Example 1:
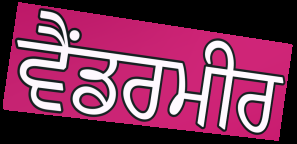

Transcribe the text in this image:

ਵੈਂਡਰਮੀਰ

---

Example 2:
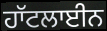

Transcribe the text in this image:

ਹਾੱਟਲਾਈਨ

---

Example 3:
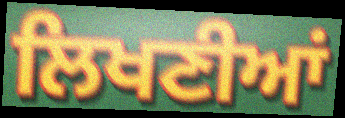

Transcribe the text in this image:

ਲਿਖਣੀਆਂ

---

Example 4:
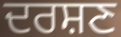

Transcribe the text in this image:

ਦਰਸ਼ਣ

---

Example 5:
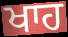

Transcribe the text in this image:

ਖਾਹ